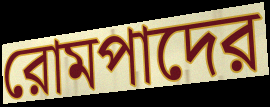
রোমপাদের